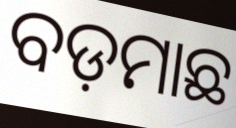
ବଡ଼ମାଛ